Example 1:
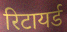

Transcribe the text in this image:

रिटायर्ड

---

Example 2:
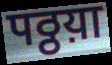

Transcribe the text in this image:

पठ्ठय़ा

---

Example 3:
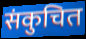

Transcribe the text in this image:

संकुचित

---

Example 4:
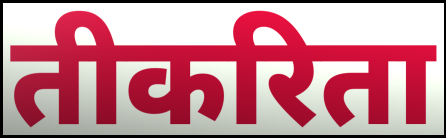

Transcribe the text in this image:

तीकरिता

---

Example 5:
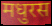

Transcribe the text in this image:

मधुरस